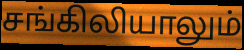
சங்கிலியாலும்